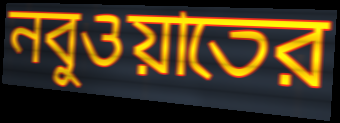
নবুওয়াতের